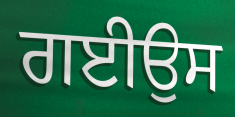
ਗਈਉਸ